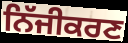
ਨਿੱਜੀਕਰਣ